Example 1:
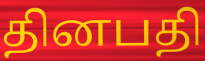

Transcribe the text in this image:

தினபதி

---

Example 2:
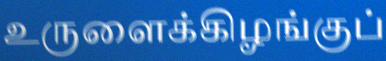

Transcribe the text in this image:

உருளைக்கிழங்குப்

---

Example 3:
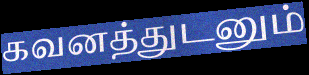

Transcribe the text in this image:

கவனத்துடனும்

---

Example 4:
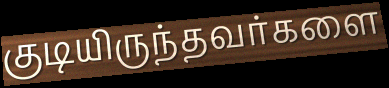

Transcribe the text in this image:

குடியிருந்தவர்களை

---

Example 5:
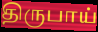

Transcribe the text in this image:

திருபாய்